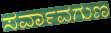
ಸರ್ವಾವಗುಣ